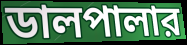
ডালপালার